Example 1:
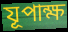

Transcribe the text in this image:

যূপাক্ষ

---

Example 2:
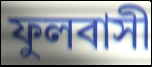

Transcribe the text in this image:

ফুলবাসী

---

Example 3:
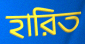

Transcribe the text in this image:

হারিত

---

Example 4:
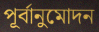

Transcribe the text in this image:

পূর্বানুমোদন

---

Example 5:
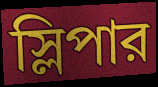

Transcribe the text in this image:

স্লিপার